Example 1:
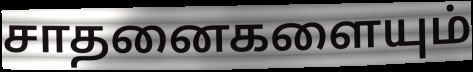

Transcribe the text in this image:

சாதனைகளையும்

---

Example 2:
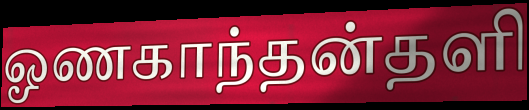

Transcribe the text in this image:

ஓணகாந்தன்தளி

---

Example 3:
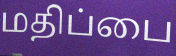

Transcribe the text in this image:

மதிப்பை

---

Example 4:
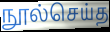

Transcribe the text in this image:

நூல்செய்த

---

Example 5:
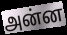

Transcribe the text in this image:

அன்ன